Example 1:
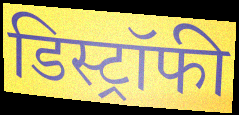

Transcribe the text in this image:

डिस्ट्रॉफी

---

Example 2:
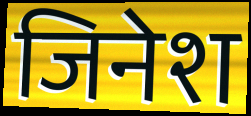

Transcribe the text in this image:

जिनेश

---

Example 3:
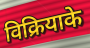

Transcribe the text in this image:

विक्रियाके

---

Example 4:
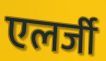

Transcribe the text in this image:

एलर्जी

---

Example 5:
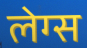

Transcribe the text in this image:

लेग्स